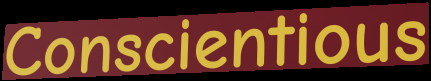
Conscientious